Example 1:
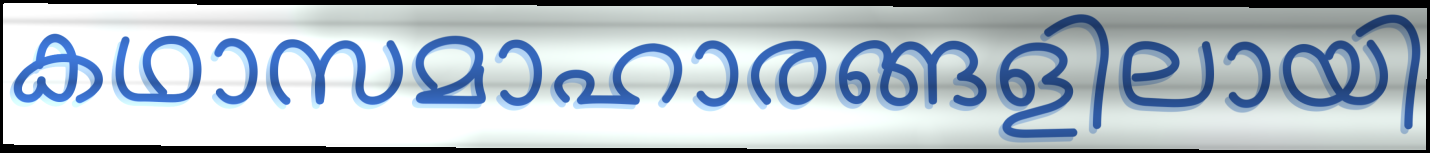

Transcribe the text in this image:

കഥാസമാഹാരങ്ങളിലായി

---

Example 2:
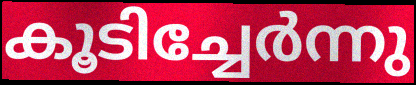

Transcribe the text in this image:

കൂടിച്ചേർന്നു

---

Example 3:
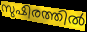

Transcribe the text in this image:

സുഷിരത്തിൽ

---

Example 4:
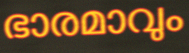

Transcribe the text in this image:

ഭാരമാവും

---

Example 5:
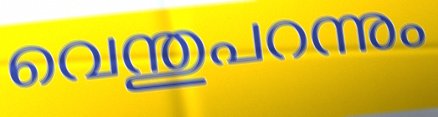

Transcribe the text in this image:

വെന്തുപറന്നും